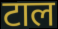
टाल